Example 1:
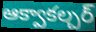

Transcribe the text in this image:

ఆక్వాకల్చర్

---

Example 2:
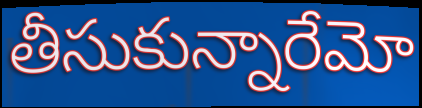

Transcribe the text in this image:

తీసుకున్నారేమో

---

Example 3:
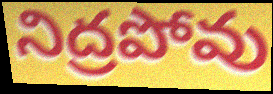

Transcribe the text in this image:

నిద్రపోవు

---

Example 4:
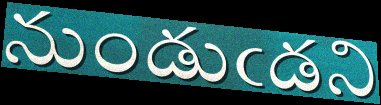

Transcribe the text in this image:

నుండుఁడని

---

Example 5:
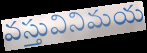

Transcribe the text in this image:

వస్తువినిమయ